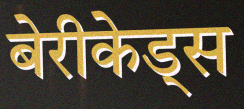
बेरीकेड्स